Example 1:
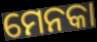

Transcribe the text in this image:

ମେନକା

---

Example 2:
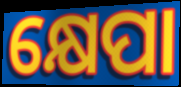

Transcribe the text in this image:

କ୍ଷେପା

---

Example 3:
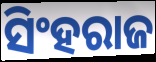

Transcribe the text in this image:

ସିଂହରାଜ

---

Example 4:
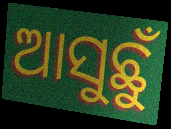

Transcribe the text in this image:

ଆସୁଛୁଁ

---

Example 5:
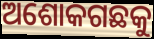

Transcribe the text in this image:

ଅଶୋକଗଛକୁ